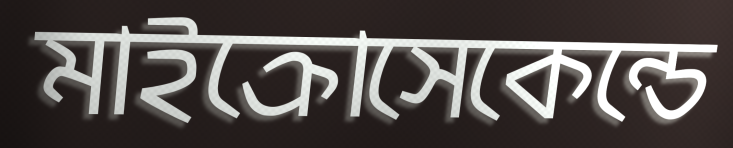
মাইক্রোসেকেন্ডে